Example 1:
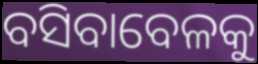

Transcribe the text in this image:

ବସିବାବେଳକୁ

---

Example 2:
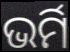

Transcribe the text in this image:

ଭର୍ମି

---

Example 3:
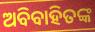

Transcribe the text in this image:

ଅବିବାହିତଙ୍କ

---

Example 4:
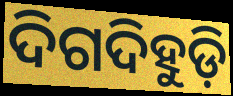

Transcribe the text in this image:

ଦିଗଦିହୁଡ଼ି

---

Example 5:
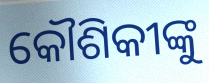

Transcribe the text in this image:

କୌଶିକୀଙ୍କୁ